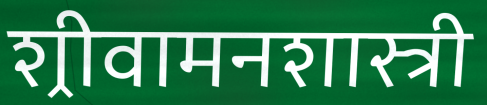
श्रीवामनशास्त्री